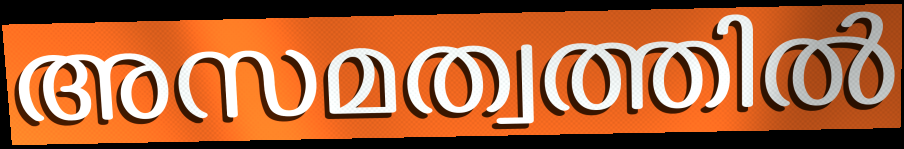
അസമത്വത്തിൽ